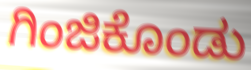
ಗಿಂಜಿಕೊಂಡು